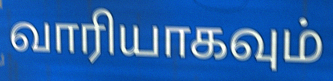
வாரியாகவும்